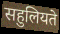
सहुलियते